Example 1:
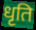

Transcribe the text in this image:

धृति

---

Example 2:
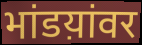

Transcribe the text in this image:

भांडय़ांवर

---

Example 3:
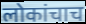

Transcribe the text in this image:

लोकांचाच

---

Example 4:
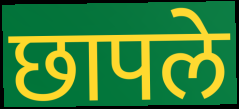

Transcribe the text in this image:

छापले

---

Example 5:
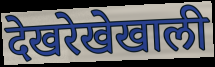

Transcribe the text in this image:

देखरेखेखाली